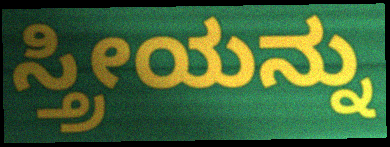
ಸ್ತ್ರೀಯನ್ನು